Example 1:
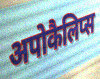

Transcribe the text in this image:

अपोकैलिप्स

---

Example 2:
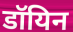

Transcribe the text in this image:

डॉयिन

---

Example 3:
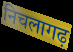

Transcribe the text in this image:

निचलागढ़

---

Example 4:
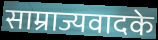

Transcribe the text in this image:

साम्राज्यवादके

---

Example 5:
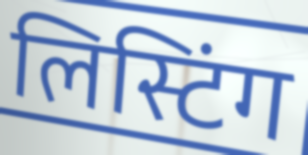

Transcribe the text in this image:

लिस्‍टिंग